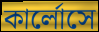
কার্লোসে